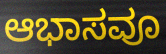
ಆಭಾಸವೂ